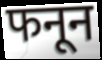
फनून